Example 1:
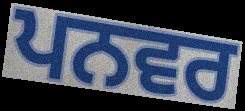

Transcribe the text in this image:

ਪਨਵਰ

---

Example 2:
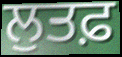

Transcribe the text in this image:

ਲੁਤਫ਼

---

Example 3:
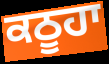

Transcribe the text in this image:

ਕਠੂਹਾ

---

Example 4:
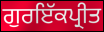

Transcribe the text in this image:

ਗੁਰਇੱਕਪ੍ਰੀਤ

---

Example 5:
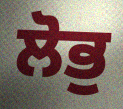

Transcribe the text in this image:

ਲੋਭੁ